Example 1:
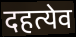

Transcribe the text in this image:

दहत्येव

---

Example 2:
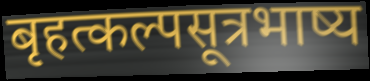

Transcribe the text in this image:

बृहत्कल्पसूत्रभाष्य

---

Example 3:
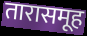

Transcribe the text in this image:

तारासमूह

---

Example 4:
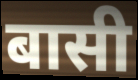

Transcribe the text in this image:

बासी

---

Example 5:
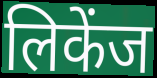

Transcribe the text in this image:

लिकेंज